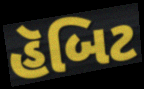
હૅબિટ